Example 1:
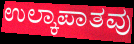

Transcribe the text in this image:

ಉಲ್ಕಾಪಾತವು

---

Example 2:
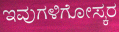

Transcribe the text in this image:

ಇವುಗಳಿಗೋಸ್ಕರ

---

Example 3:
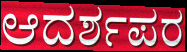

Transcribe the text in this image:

ಆದರ್ಶಪರ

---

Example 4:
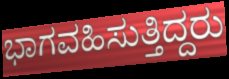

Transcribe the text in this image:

ಭಾಗವಹಿಸುತ್ತಿದ್ದರು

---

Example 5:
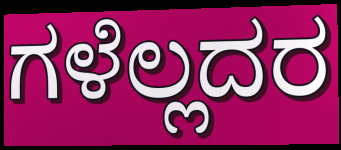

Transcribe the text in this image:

ಗಳೆಲ್ಲದರ